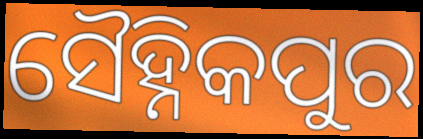
ସୈହ୍ନିକପୁର